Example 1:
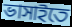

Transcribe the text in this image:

ভাসাইতে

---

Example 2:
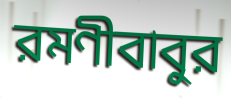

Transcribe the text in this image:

রমণীবাবুর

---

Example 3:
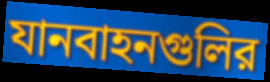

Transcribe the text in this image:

যানবাহনগুলির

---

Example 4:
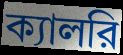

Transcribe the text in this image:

ক্যালরি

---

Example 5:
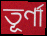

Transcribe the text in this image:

তূর্ণা